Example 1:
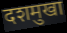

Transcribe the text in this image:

दशमुखा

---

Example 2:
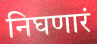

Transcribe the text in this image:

निघणारं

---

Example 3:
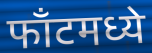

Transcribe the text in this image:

फाँटमध्ये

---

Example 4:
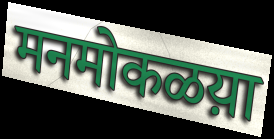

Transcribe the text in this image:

मनमोकळय़ा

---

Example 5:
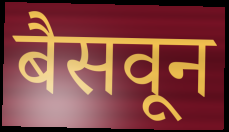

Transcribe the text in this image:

बैसवून